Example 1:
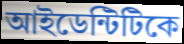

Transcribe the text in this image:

আইডেন্টিটিকে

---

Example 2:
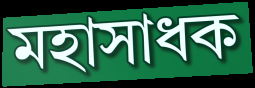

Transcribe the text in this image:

মহাসাধক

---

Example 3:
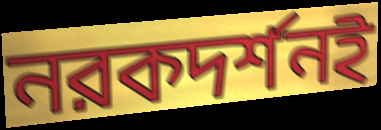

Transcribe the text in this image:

নরকদর্শনই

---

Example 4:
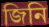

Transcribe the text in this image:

জিনি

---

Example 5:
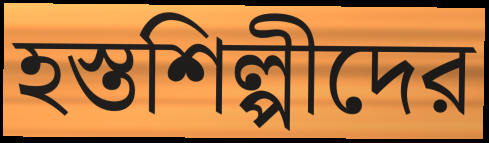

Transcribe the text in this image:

হস্তশিল্পীদের